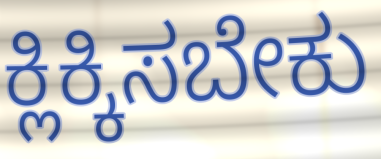
ಕ್ಲಿಕ್ಕಿಸಬೇಕು